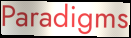
Paradigms